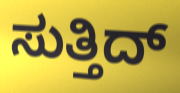
ಸುತ್ತಿದ್